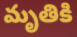
మృతికి